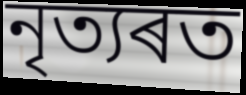
নৃত্যৰত